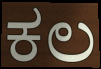
ಕಲ